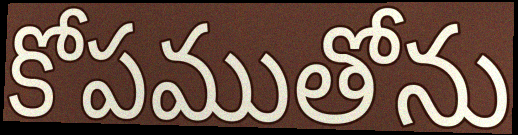
కోపముతోను